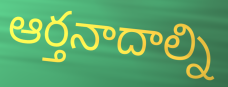
ఆర్తనాదాల్ని